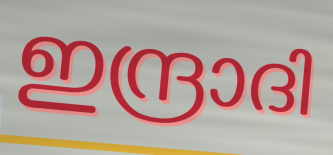
ഇന്ദ്രാദി